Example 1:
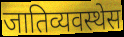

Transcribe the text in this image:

जातिव्यवस्थेस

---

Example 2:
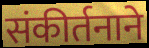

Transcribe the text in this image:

संकीर्तनाने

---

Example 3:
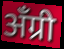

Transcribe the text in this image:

अँग्री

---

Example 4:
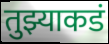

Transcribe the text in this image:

तुझ्याकडं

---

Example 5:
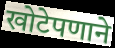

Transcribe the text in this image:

खोटेपणाने